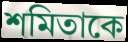
শমিতাকে